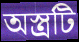
অস্ত্রটি